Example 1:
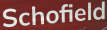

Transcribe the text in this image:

Schofield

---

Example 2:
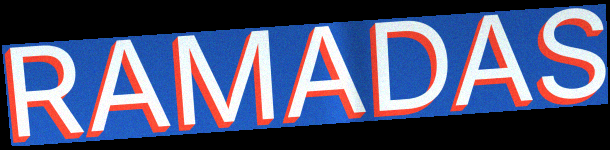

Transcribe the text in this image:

RAMADAS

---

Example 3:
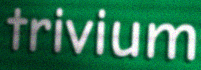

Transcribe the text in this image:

trivium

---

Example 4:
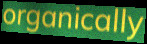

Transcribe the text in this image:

organically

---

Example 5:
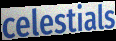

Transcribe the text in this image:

celestials